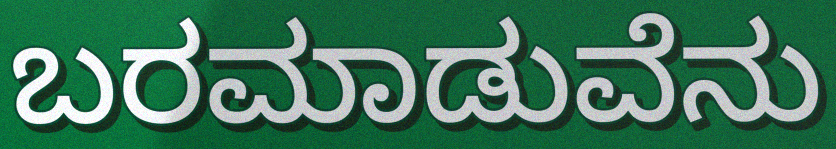
ಬರಮಾಡುವೆನು